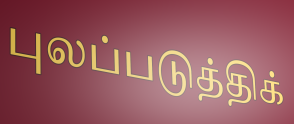
புலப்படுத்திக்